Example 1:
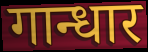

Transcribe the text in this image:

गान्धार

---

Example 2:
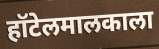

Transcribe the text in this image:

हॉटेलमालकाला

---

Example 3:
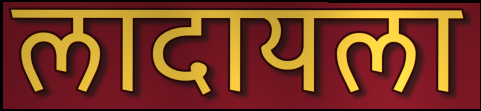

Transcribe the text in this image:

लादायला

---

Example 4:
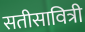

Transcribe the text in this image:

सतीसावित्री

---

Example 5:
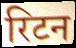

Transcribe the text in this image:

रिटन